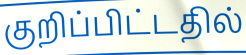
குறிப்பிட்டதில்